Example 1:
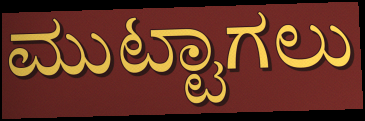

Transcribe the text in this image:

ಮುಟ್ಟಾಗಲು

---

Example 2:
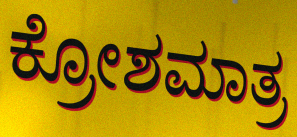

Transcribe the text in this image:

ಕ್ರೋಶಮಾತ್ರ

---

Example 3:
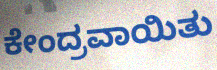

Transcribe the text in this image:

ಕೇಂದ್ರವಾಯಿತು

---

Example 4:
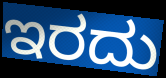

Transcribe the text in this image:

ಇರದು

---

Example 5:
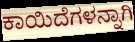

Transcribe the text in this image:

ಕಾಯಿದೆಗಳನ್ನಾಗಿ